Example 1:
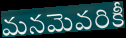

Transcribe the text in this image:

మనమెవరికీ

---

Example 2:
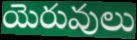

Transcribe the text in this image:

యెరువులు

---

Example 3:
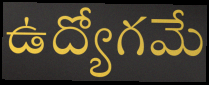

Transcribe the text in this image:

ఉద్యోగమే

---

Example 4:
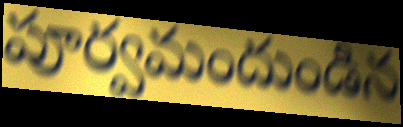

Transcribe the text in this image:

పూర్వమందుండిన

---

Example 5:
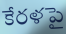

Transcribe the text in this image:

కేరళపై